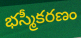
భస్మీకరణం